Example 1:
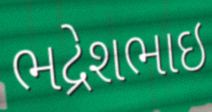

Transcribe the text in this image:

ભદ્રેશભાઇ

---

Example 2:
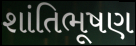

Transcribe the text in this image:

શાંતિભૂષણ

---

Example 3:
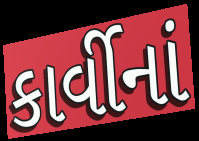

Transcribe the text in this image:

કાર્વીનાં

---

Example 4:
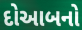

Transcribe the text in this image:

દોઆબનો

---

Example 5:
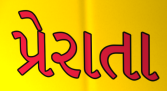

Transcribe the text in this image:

પ્રેરાતા